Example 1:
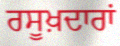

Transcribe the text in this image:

ਰਸੂਖ਼ਦਾਰਾਂ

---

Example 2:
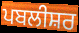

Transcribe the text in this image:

ਪਬਲੀਸ਼ਰ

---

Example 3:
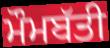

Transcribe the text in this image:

ਮੌਮਬੱਤੀ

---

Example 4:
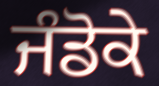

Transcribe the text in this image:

ਜੰਡੋਕੇ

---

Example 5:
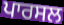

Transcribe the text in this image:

ਪਾਰਸਲ